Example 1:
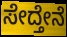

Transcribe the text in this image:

ಸೇದ್ತೇನೆ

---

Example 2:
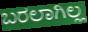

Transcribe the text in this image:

ಬರಲಾಗಿಲ್ಲ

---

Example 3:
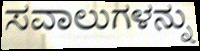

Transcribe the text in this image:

ಸವಾಲುಗಳನ್ನು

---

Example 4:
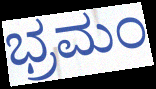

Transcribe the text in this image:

ಭ್ರಮಂ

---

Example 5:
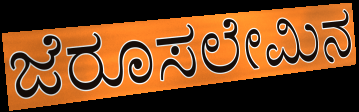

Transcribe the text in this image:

ಜೆರೂಸಲೇಮಿನ